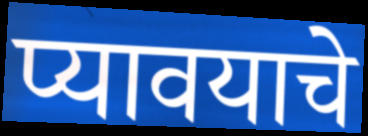
प्यावयाचे